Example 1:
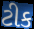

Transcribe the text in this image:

ટીક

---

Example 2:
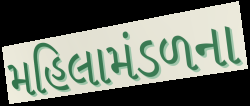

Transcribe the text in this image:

મહિલામંડળના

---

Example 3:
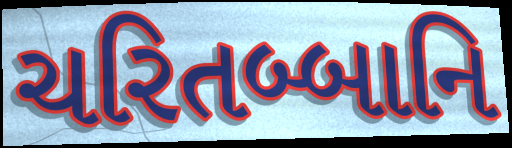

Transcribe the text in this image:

ચરિતબ્બાનિ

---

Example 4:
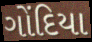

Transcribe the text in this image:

ગોંદિયા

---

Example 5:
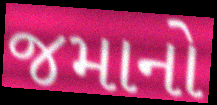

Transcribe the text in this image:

જમાનો